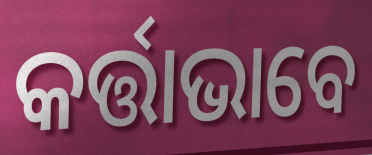
କର୍ତ୍ତାଭାବେ